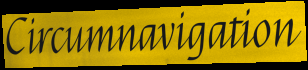
Circumnavigation